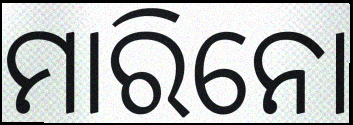
ମାରିନୋ